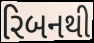
રિબનથી